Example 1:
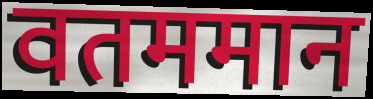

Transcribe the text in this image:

वतममान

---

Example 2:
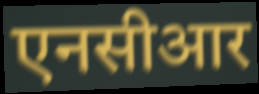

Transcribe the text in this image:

एनसीआर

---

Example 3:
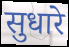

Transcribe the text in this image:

सुधारे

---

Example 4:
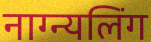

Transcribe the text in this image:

नाग्न्यलिंग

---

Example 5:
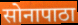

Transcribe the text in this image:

सोनापाठा